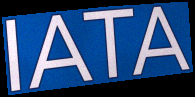
IATA